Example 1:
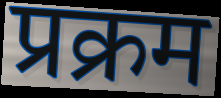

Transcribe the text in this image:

प्रक्रम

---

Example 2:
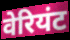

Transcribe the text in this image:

वेरियंट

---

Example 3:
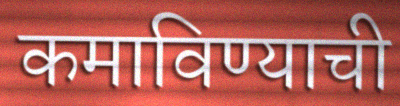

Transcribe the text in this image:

कमाविण्याची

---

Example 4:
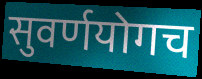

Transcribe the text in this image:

सुवर्णयोगच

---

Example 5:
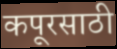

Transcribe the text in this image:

कपूरसाठी